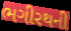
ભગીરથની